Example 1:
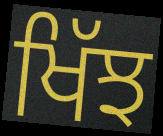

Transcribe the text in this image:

ਖਿੱਝ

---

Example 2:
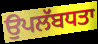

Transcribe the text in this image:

ਉਪਲੱਬਧਤਾ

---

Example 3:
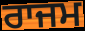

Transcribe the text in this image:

ਰਾਜਮ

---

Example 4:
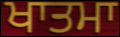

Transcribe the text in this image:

ਖਾਤਮਾ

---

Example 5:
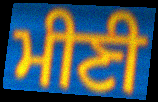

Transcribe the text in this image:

ਮੀਣੀ